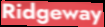
Ridgeway